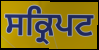
ਸਕ੍ਰਿਪਟ